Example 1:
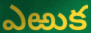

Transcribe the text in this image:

ఎఱుక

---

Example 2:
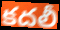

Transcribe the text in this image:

కదలీ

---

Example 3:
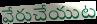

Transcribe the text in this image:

వేరుచేయుట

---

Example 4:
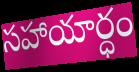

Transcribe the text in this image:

సహాయార్ధం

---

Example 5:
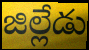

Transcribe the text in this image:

జిల్లేడు